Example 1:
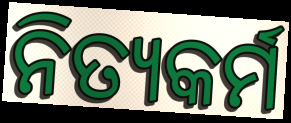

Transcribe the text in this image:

ନିତ୍ଯକର୍ମ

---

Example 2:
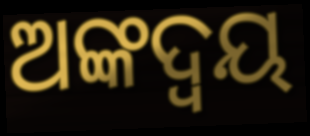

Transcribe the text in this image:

ଅଙ୍କଦ୍ବୟ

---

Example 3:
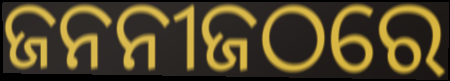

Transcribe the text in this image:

ଜନନୀଜଠରେ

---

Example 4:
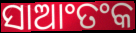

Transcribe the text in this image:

ସାଆଂତଂକ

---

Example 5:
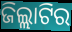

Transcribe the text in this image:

ଜିଲ୍ଲାଟିର